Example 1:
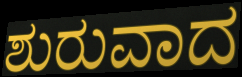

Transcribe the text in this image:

ಶುರುವಾದ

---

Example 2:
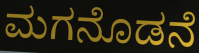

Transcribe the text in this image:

ಮಗನೊಡನೆ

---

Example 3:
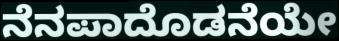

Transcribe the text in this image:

ನೆನಪಾದೊಡನೆಯೇ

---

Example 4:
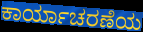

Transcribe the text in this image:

ಕಾರ್ಯಾಚರಣೆಯ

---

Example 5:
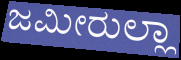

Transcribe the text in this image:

ಜಮೀರುಲ್ಲಾ